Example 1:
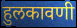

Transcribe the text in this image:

हुलकावणी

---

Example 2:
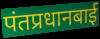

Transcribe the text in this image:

पंतप्रधानबाई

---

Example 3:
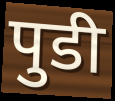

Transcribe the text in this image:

पुडी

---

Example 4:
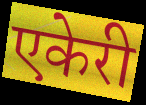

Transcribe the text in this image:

एकेरी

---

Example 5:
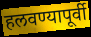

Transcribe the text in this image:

हलवण्यापूर्वी